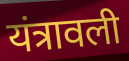
यंत्रावली